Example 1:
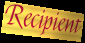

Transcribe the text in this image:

Recipient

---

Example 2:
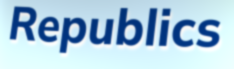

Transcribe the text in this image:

Republics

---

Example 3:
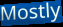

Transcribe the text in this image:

Mostly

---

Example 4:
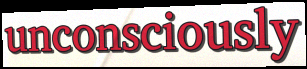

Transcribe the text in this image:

unconsciously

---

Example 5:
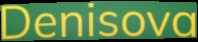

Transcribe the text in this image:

Denisova